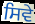
ਸਿਵੇ